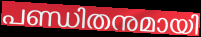
പണ്ഡിതനുമായി